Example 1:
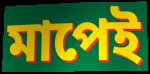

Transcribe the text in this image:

মাপেই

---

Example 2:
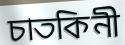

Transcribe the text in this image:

চাতকিনী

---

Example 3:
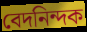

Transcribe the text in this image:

বেদনিন্দক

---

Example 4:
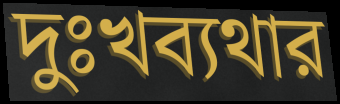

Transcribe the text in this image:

দুঃখব্যথার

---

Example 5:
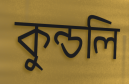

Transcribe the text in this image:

কুন্ডলি